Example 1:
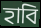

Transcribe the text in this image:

হাবি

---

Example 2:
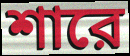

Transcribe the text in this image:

শারে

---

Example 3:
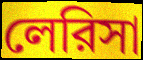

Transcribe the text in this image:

লেরিসা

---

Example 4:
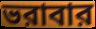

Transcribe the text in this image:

ভরাবার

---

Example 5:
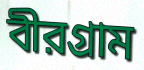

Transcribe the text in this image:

বীরগ্রাম